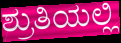
ಶ್ರುತಿಯಲ್ಲಿ